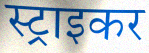
स्ट्राइकर